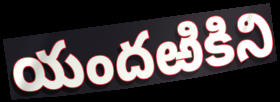
యందఱికిని